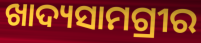
ଖାଦ୍ୟସାମଗ୍ରୀର